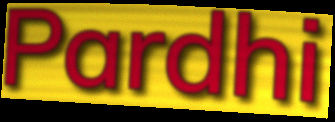
Pardhi